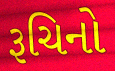
રૂચિનો